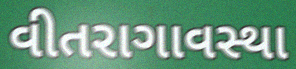
વીતરાગાવસ્થા